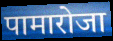
पामारोजा